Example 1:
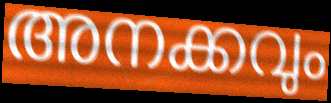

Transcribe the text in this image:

അനക്കവും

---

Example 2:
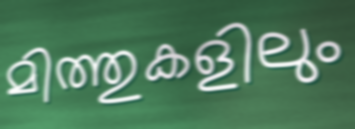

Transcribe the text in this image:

മിത്തുകളിലും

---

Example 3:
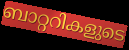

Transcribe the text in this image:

ബാറ്ററികളുടെ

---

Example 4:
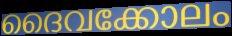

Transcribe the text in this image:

ദൈവക്കോലം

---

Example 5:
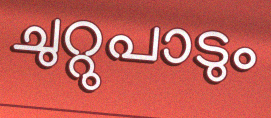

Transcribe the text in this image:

ചുറ്റുപാടും